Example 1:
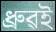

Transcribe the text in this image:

ধ্ৰুৱই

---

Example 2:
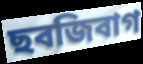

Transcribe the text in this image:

ছবজিবাগ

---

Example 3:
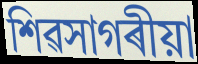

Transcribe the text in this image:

শিৱসাগৰীয়া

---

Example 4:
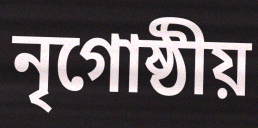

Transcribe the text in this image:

নৃগোষ্ঠীয়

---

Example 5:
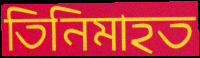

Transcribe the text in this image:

তিনিমাহত